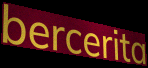
bercerita